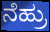
ನೆಹ್ರು